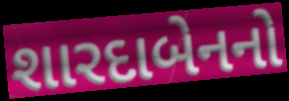
શારદાબેનનો